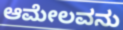
ಆಮೇಲವನು